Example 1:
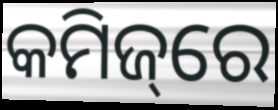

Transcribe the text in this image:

କମିଜ୍‌ରେ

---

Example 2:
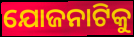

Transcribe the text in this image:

ଯୋଜନାଟିକୁ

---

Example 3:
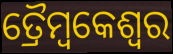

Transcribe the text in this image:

ତ୍ରୈମ୍ବକେଶ୍ୱର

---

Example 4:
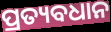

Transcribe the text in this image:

ପ୍ରତ୍ୟବଧାନ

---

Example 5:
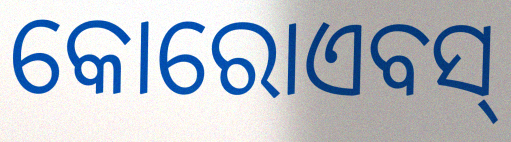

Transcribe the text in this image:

କୋରୋଏବସ୍